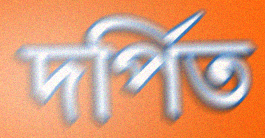
দর্পিত